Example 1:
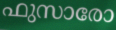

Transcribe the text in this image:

ഫുസാരോ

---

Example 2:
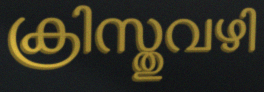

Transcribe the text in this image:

ക്രിസ്തുവഴി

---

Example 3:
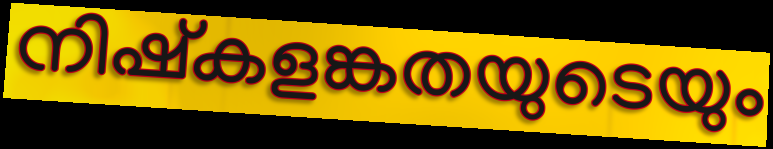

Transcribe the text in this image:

നിഷ്കളങ്കതയുടെയും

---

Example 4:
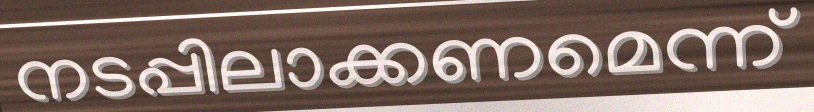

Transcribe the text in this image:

നടപ്പിലാക്കണമെന്ന്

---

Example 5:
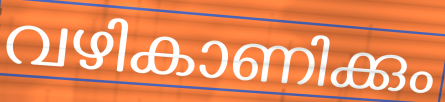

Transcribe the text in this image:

വഴികാണിക്കും